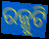
ରଜ୍ଜୁଟି